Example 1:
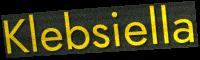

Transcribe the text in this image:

Klebsiella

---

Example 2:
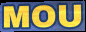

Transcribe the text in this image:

MOU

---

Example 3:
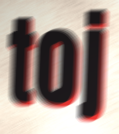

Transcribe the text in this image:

toj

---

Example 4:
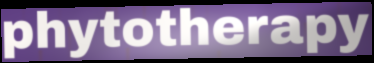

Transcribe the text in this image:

phytotherapy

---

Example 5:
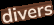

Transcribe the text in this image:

divers